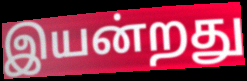
இயன்றது